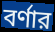
বর্ণার